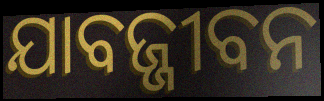
ଯାବଜ୍ଜୀବନ